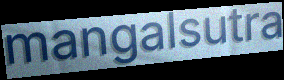
mangalsutra